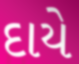
દાયે